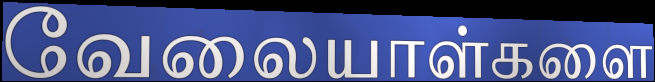
வேலையாள்களை